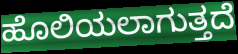
ಹೊಲಿಯಲಾಗುತ್ತದೆ